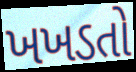
ખખડતો